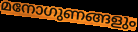
മനോഗുണങ്ങളും